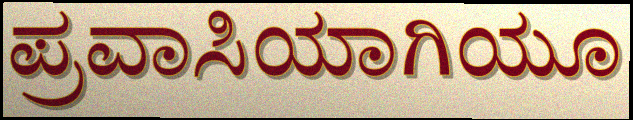
ಪ್ರವಾಸಿಯಾಗಿಯೂ